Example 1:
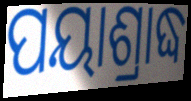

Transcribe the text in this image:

ପୟାଶ୍ରାଦ୍ଧ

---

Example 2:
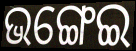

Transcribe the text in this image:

ଭଙ୍ଗେଇ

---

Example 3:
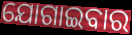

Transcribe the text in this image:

ଯୋଗାଇବାର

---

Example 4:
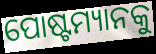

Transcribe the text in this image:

ପୋଷ୍ଟମ୍ୟାନକୁ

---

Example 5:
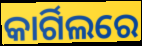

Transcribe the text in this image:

କାର୍ଗିଲରେ